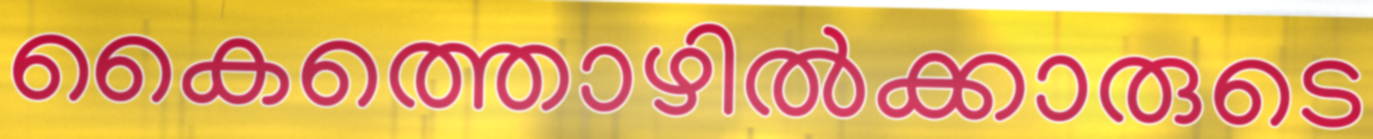
കൈത്തൊഴിൽക്കാരുടെ